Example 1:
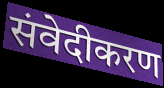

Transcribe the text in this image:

संवेदीकरण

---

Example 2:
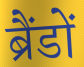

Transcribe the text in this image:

ब्रैंडों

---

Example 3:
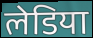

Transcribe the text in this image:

लेडिया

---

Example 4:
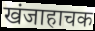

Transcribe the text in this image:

खंजाहाचक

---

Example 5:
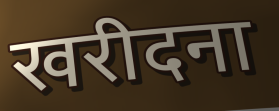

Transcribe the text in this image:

खरीदना